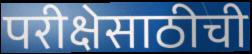
परीक्षेसाठीची